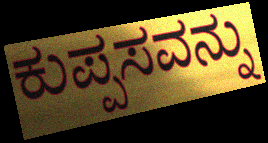
ಕುಪ್ಪಸವನ್ನು